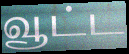
வூட்ட